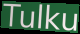
Tulku